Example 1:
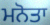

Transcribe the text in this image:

ਮਨੋਤਾ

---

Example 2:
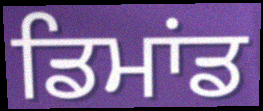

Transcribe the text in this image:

ਡਿਮਾਂਡ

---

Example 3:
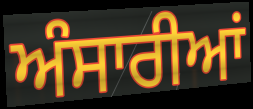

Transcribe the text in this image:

ਅੰਸਾਰੀਆਂ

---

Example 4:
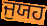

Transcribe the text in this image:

ਜੁਯਹ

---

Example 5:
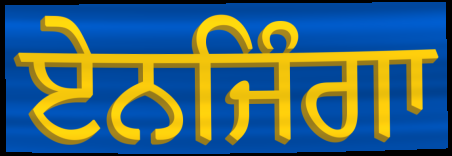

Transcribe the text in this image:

ਏਨਜਿੰਗਾ